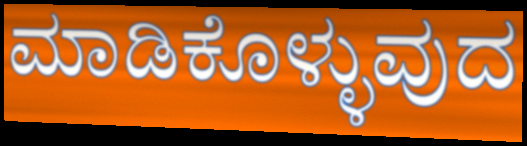
ಮಾಡಿಕೊಳ್ಳುವುದ